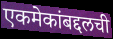
एकमेकांबद्दलची